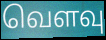
வெளவு